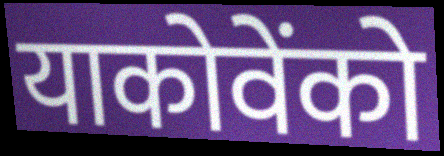
याकोवेंको